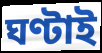
ঘণ্টাই